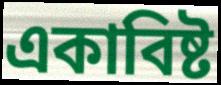
একাবিষ্ট